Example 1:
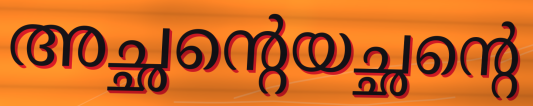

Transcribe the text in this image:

അച്ഛന്റെയച്ഛന്റെ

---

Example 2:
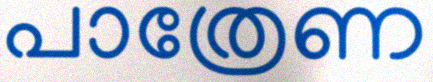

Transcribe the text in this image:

പാത്രേണ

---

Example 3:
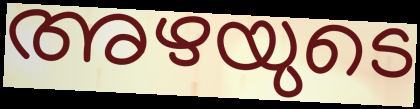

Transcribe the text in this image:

അഴയുടെ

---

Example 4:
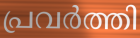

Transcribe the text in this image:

പ്രവർത്തി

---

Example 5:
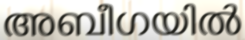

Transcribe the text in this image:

അബീഗയിൽ